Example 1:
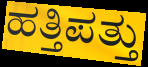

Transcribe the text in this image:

ಹತ್ತಿಪತ್ತು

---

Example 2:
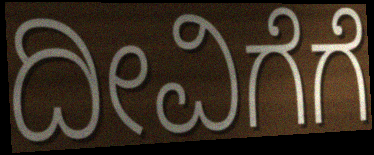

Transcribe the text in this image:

ದೀವಿಗೆಗೆ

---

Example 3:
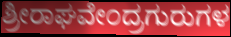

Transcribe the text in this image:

ಶ್ರೀರಾಘವೇಂದ್ರಗುರುಗಳ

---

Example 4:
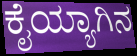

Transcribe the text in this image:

ಕೈಯ್ಯಾಗಿನ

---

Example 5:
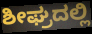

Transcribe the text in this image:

ಶೀಘ್ರದಲ್ಲಿ